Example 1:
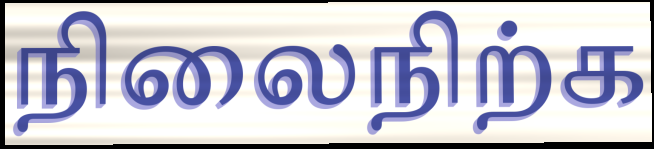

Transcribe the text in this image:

நிலைநிற்க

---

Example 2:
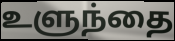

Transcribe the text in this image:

உளுந்தை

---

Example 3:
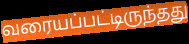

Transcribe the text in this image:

வரையப்பட்டிருந்தது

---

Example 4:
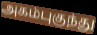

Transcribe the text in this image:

அகம்புகுந்து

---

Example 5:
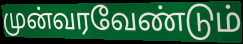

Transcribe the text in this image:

முன்வரவேண்டும்